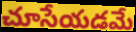
చూసేయడమే